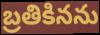
బ్రతికినను